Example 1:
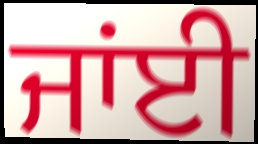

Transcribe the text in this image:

ਜਾਂਈ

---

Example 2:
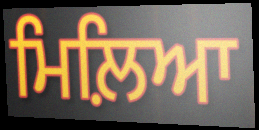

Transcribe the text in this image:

ਮਿਲ਼ਿਆ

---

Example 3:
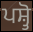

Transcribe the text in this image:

ਪਸ਼੍ਤੋ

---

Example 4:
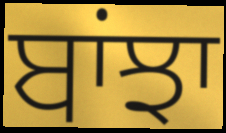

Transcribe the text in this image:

ਬਾਂਝਾ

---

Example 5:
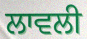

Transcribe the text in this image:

ਲਾਵਲੀ